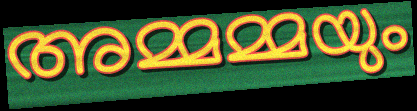
അമ്മമ്മയും